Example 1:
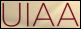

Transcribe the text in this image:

UIAA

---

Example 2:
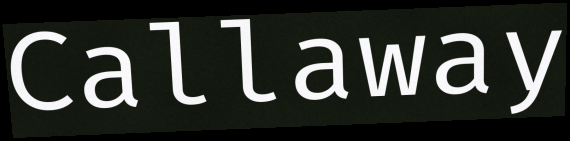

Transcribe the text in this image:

Callaway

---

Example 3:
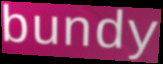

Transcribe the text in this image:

bundy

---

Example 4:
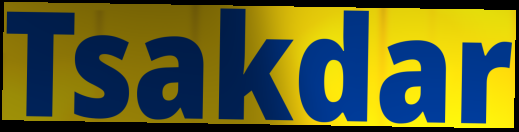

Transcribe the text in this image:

Tsakdar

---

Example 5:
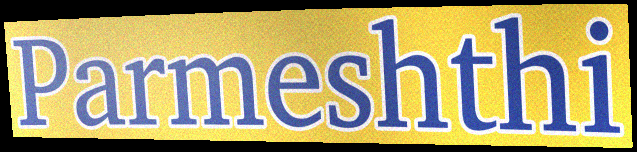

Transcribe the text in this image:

Parmeshthi